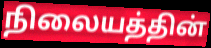
நிலையத்தின்